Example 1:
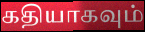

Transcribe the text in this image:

கதியாகவும்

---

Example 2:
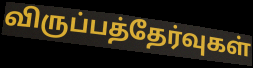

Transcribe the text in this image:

விருப்பத்தேர்வுகள்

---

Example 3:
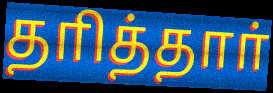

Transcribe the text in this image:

தரித்தார்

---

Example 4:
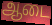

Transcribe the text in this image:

ஆடை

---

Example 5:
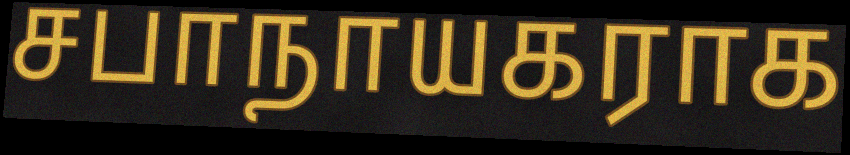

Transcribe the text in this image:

சபாநாயகராக